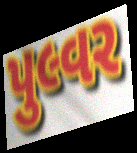
પુલ્વર